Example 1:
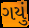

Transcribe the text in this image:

ગયું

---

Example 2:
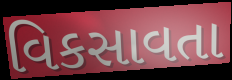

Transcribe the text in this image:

વિકસાવતા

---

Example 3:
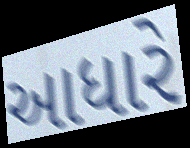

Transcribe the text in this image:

આધારે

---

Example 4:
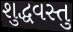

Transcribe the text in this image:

શુદ્ધવસ્તુ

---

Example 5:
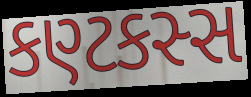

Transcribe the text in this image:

કણ્ટકસ્સ